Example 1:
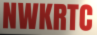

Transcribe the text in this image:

NWKRTC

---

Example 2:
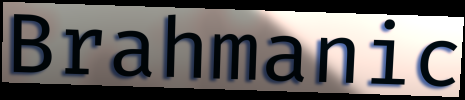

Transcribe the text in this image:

Brahmanic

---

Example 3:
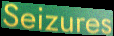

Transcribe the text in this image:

Seizures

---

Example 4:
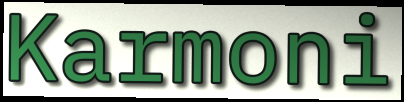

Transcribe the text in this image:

Karmoni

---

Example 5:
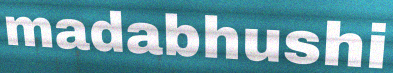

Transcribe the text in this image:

madabhushi